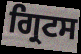
ਗ੍ਰਿਟਸ